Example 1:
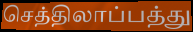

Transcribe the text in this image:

செத்திலாப்பத்து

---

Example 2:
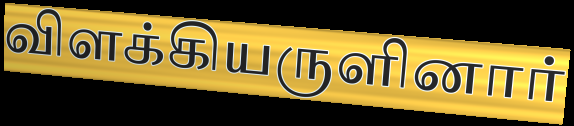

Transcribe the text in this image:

விளக்கியருளினார்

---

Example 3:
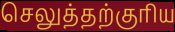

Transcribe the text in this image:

செலுத்தற்குரிய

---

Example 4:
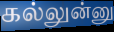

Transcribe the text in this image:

கல்லுன்னு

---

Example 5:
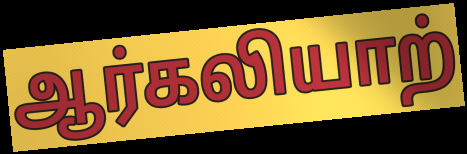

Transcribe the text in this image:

ஆர்கலியாற்